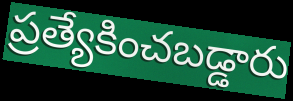
ప్రత్యేకించబడ్డారు